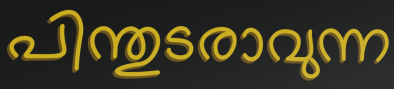
പിന്തുടരാവുന്ന